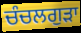
ਚੰਚਲਗੁੜਾ